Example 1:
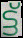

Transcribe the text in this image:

ട്ട്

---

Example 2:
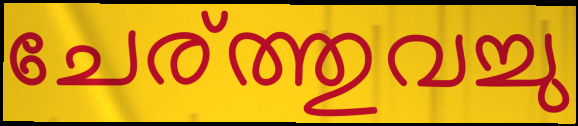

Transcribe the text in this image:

ചേര്ത്തുവച്ചു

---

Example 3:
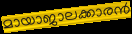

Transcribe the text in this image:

മായാജാലക്കാരൻ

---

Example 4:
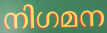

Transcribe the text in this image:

നിഗമന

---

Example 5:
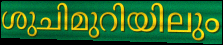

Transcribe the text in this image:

ശുചിമുറിയിലും